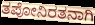
ತಪೋನಿರತನಾಗಿ